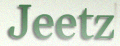
Jeetz